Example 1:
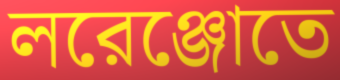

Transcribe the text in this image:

লরেঞ্জোতে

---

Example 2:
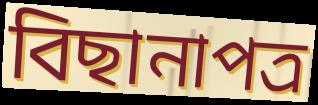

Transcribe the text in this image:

বিছানাপত্র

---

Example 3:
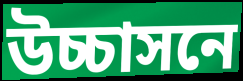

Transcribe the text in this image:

উচ্চাসনে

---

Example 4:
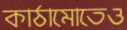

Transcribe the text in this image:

কাঠামোতেও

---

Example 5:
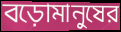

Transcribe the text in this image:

বড়োমানুষের